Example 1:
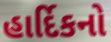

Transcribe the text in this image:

હાર્દિકનો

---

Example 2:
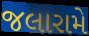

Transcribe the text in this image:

જલારામે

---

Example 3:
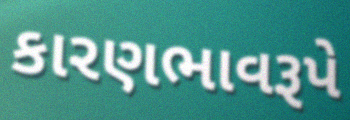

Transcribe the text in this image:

કારણભાવરૂપે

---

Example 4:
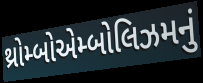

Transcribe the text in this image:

થ્રોમ્બોએમ્બોલિઝમનું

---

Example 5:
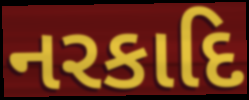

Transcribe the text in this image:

નરકાદિ